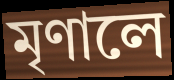
মৃণালে